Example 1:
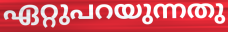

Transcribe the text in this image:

ഏറ്റുപറയുന്നതു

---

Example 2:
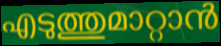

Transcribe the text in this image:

എടുത്തുമാറ്റാൻ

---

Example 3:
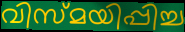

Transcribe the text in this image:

വിസ്മയിപ്പിച്ച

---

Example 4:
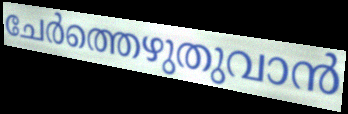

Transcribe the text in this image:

ചേർത്തെഴുതുവാൻ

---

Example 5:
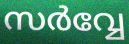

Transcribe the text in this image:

സർവ്വേ